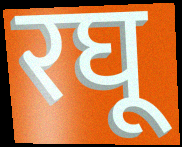
रघू